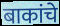
बाकांचे